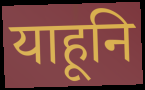
याहूनि